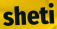
sheti